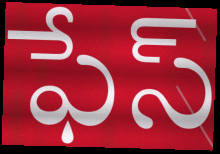
ఫేస్